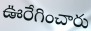
ఊరేగించారు